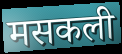
मसकली